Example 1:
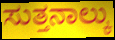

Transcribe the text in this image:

ಸುತ್ತನಾಲ್ಕು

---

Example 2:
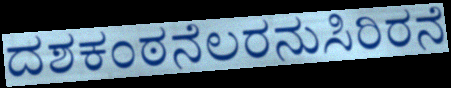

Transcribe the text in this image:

ದಶಕಂಠನೆಲರನುಸಿರಿರನೆ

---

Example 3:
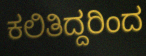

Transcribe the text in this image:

ಕಲಿತಿದ್ದರಿಂದ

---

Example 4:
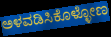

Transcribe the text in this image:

ಅಳವಡಿಸಿಕೊಳ್ಳೋಣ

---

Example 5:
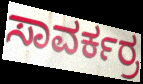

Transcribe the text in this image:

ಸಾವರ್ಕರ್ರ